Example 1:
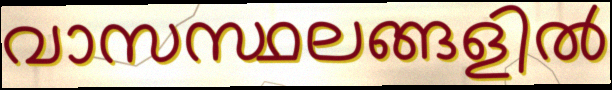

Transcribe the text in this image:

വാസസ്ഥലങ്ങളിൽ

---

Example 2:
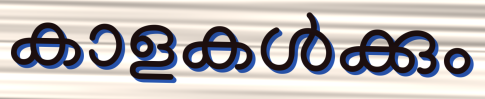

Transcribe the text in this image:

കാളകൾക്കും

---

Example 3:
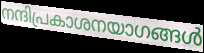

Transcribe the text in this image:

നന്ദിപ്രകാശനയാഗങ്ങൾ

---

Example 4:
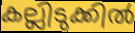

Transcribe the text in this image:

കല്ലിടുക്കിൽ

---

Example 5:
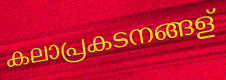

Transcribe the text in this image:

കലാപ്രകടനങ്ങള്